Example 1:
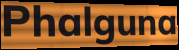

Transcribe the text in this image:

Phalguna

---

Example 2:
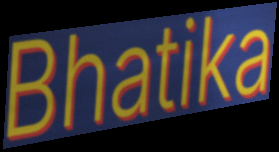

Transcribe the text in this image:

Bhatika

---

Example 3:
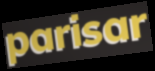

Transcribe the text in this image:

parisar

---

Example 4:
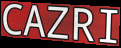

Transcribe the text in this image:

CAZRI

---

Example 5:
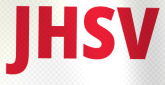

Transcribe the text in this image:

JHSV